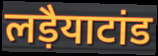
लड़ैयाटांड